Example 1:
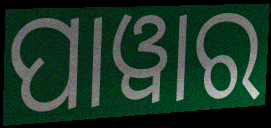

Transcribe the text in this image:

ପାୱାର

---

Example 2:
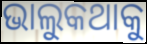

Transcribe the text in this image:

ଭାଲୁକଥାକୁ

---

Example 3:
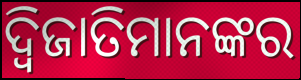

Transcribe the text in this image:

ଦ୍ୱିଜାତିମାନଙ୍କର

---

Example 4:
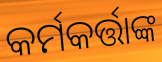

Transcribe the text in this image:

କର୍ମକର୍ତ୍ତାଙ୍କ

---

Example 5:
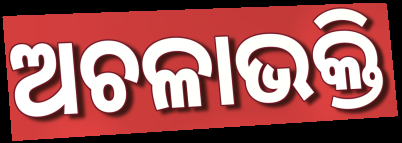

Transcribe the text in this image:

ଅଚଳାଭକ୍ତି